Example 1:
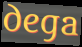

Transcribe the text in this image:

dega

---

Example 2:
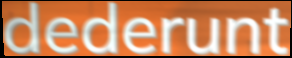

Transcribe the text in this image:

dederunt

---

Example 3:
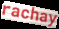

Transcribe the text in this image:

rachay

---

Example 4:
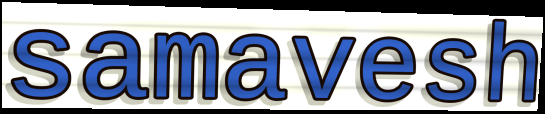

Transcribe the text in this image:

samavesh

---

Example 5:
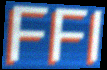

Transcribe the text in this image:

FFI